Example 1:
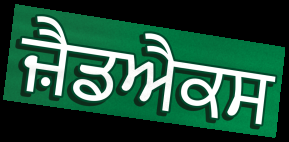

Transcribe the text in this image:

ਜ਼ੈਡਐਕਸ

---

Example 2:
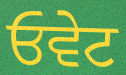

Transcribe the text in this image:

ਓਵੇਟ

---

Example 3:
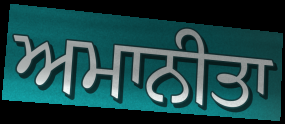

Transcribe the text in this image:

ਅਮਾਨੀਤਾ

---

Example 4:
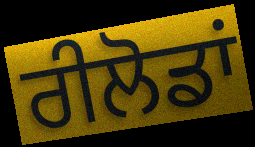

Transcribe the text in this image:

ਰੀਲੋਡਾਂ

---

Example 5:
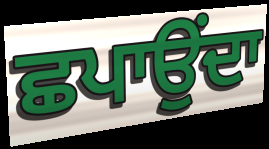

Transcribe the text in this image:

ਛਪਾਉਂਦਾ